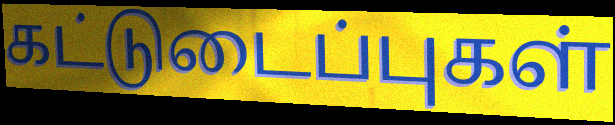
கட்டுடைப்புகள்